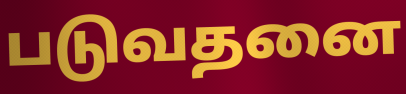
படுவதனை